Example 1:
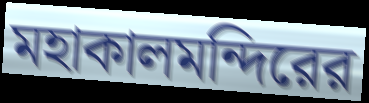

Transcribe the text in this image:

মহাকালমন্দিরের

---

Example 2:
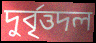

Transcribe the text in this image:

দুর্বৃত্তদল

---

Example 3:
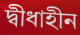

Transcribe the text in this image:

দ্বীধাহীন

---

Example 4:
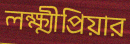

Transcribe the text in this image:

লক্ষ্মীপ্রিয়ার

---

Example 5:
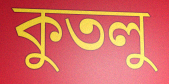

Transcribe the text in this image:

কুতলু